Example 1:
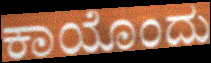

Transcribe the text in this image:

ಕಾಯೊಂದು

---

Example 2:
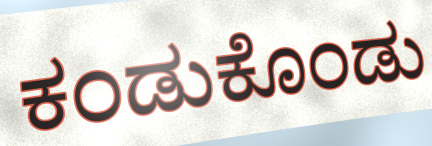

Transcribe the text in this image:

ಕಂಡುಕೊಂಡು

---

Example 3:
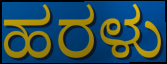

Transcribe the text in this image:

ಹರಳು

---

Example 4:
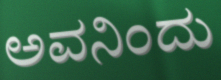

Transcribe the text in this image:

ಅವನಿಂದು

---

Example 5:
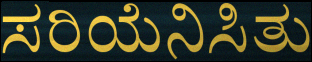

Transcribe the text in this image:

ಸರಿಯೆನಿಸಿತು